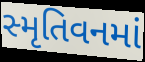
સ્મૃતિવનમાં